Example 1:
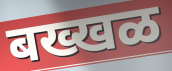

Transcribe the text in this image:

बख्खळ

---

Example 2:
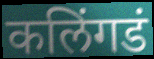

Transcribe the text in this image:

कलिंगडं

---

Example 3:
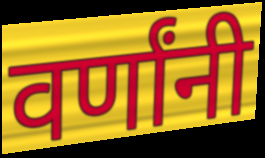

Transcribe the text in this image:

वर्णांनी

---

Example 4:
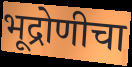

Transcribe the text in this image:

भूद्रोणीचा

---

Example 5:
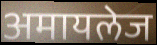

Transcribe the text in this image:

अमायलेज